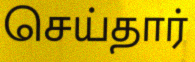
செய்தார்